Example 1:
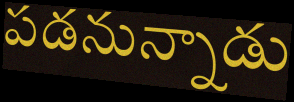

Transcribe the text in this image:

పడనున్నాడు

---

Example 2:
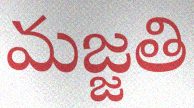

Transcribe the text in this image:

మజ్జతి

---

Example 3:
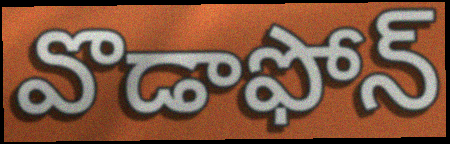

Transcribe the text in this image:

వొడాఫోన్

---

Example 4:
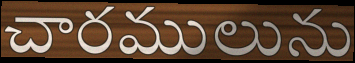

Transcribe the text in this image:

చారములును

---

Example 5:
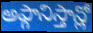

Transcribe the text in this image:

అఫ్గానిస్తాన్లో